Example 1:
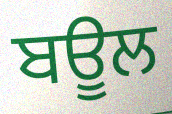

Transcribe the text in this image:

ਬਊਲ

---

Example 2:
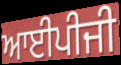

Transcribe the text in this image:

ਆਈਪੀਜੀ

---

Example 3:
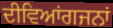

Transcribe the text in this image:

ਦੀਵਿਆਂਗਜਨਾਂ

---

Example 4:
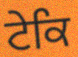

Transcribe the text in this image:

ਟੇਕਿ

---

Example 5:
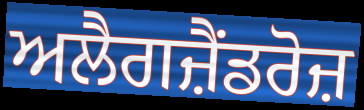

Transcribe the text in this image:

ਅਲੈਗਜ਼ੈਂਡਰੋਜ਼